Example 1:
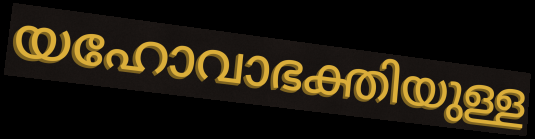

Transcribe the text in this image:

യഹോവാഭക്തിയുള്ള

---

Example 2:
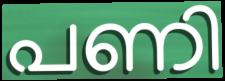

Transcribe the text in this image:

പണി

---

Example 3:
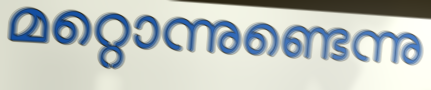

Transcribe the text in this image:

മറ്റൊന്നുണ്ടെന്നു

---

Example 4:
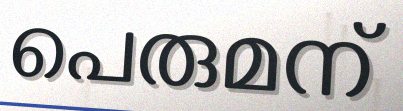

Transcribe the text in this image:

പെരുമന്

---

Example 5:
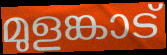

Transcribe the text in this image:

മുളങ്കാട്